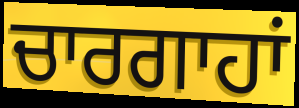
ਚਾਰਗਾਹਾਂ